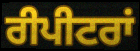
ਰੀਪੀਟਰਾਂ